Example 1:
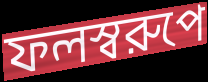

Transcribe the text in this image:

ফলস্বৰুপে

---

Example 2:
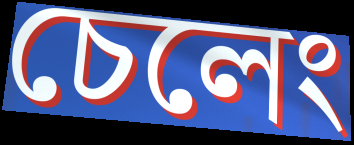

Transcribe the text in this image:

চেলেং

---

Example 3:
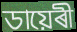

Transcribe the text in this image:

ডায়েৰী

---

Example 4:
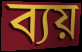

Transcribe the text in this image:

ব্যয়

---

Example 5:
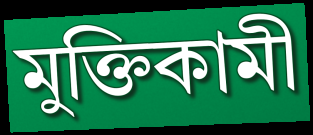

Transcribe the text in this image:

মুক্তিকামী